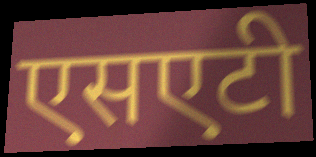
एसएटी